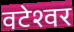
वटेश्वर